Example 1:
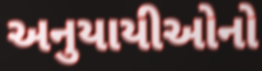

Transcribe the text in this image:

અનુયાયીઓનો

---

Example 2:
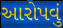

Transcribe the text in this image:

આરોપવું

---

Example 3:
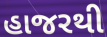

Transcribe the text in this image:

હાજરથી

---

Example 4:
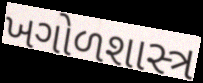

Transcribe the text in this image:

ખગોળશાસ્ત્ર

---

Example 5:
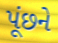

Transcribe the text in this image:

પૂંછને